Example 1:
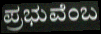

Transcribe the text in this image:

ಪ್ರಭುವೆಂಬ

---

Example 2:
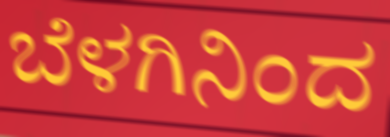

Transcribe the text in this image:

ಬೆಳಗಿನಿಂದ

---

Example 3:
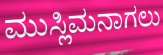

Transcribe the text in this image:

ಮುಸ್ಲಿಮನಾಗಲು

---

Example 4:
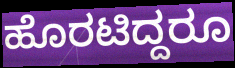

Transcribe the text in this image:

ಹೊರಟಿದ್ದರೂ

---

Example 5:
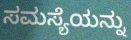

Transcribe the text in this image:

ಸಮಸ್ಯೆಯನ್ನು